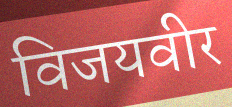
विजयवीर